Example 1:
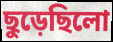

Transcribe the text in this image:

ছুড়েছিলো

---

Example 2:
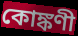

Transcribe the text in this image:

কোঙ্কণী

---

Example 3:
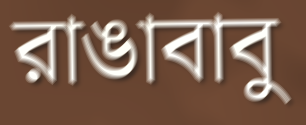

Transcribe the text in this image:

রাঙাবাবু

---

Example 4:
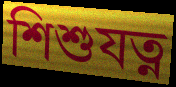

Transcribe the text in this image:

শিশুযত্ন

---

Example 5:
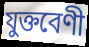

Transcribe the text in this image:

যুক্তবেণী